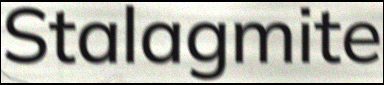
Stalagmite